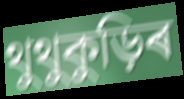
থুথুকুড়িৰ